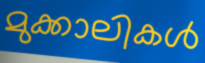
മുക്കാലികൾ